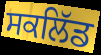
ਸਕਲਿੱਡ